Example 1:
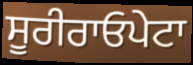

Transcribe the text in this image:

ਸੂਰੀਰਾਓਪੇਟਾ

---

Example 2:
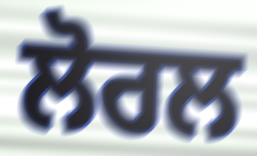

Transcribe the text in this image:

ਲੋਰਲ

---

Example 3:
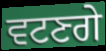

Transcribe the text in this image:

ਵਟਣਗੇ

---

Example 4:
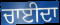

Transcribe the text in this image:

ਚਾਈਦਾ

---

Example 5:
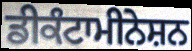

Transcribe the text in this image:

ਡੀਕੰਟਾਮੀਨੇਸ਼ਨ